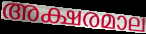
അക്ഷരമാല